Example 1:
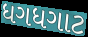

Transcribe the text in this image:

ધગધગાટ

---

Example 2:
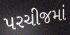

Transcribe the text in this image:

પરચીજમાં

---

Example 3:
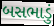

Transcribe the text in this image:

બસભાડું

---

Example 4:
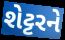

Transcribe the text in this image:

શેટ્ટરને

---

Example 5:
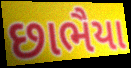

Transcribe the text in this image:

છાભૈયા